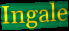
Ingale